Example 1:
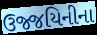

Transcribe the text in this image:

ઉજ્જયિનીના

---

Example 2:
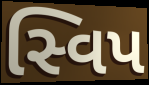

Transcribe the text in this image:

સ્વિપ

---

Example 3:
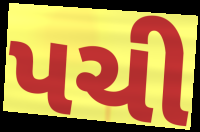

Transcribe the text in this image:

પચી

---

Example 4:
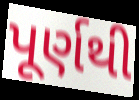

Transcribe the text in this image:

પૂર્ણથી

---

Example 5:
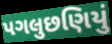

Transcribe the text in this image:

પગલુછણિયું